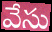
వేసు